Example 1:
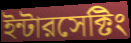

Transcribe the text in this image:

ইন্টারসেক্টিং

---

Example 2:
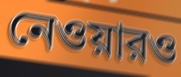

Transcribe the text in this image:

নেওয়ারও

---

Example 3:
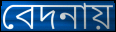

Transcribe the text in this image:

বেদনায়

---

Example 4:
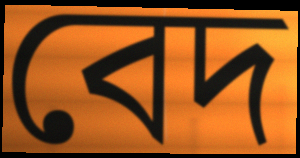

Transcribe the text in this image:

বেদ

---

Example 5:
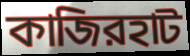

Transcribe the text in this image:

কাজিরহাট